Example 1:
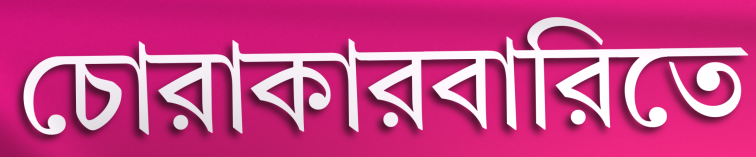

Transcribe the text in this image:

চোরাকারবারিতে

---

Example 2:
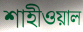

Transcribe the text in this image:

শাহীওয়াল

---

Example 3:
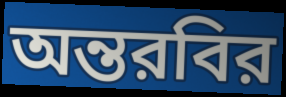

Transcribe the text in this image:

অন্তরবির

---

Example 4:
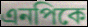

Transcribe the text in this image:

এনপিকে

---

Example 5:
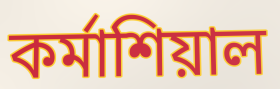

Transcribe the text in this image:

কর্মাশিয়াল